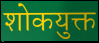
शोकयुक्त